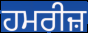
ਹਮਰੀਜ਼